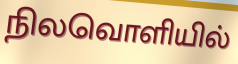
நிலவொளியில்